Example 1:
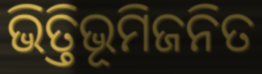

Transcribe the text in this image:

ଭିତ୍ତିଭୂମିଜନିତ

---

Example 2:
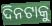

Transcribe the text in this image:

ଦିନଟାକୁ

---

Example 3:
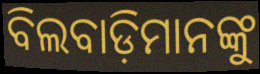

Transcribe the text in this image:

ବିଲବାଡ଼ିମାନଙ୍କୁ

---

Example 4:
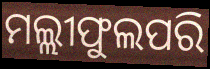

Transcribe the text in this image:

ମଲ୍ଲୀଫୁଲପରି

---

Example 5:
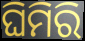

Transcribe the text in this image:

ଘିମିରି